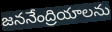
జననేంద్రియాలను